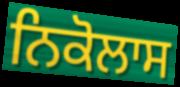
ਨਿਕੋਲਾਸ